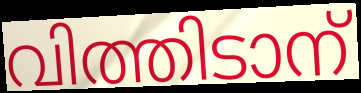
വിത്തിടാന്